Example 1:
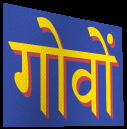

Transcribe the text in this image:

गोवों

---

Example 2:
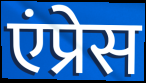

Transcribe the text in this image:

एंप्रेस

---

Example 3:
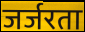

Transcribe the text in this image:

जर्जरता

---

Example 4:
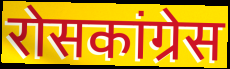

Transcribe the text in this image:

रोसकांग्रेस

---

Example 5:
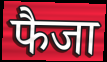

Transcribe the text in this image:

फैजा